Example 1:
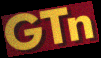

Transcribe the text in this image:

GTn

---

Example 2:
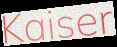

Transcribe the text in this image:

Kaiser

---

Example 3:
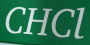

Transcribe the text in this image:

CHCl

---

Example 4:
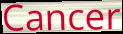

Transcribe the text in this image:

Cancer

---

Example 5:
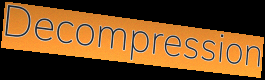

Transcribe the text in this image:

Decompression